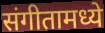
संगीतामध्ये